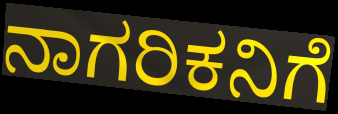
ನಾಗರಿಕನಿಗೆ